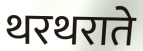
थरथराते